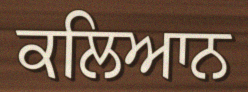
ਕਲਿਆਨ